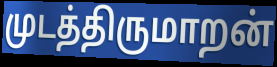
முடத்திருமாறன்